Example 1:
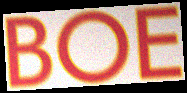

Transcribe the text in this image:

BOE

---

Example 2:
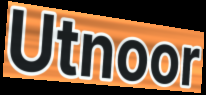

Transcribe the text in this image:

Utnoor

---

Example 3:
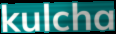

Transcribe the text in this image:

kulcha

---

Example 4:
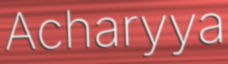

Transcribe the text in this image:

Acharyya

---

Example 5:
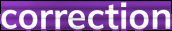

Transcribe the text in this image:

correction